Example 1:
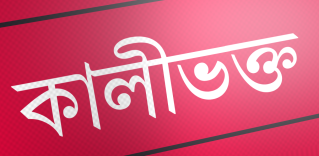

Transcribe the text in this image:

কালীভক্ত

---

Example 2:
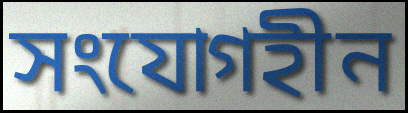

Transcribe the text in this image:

সংযোগহীন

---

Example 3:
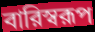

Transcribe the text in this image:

বারিস্বরূপ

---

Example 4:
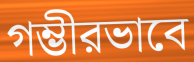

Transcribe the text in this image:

গম্ভীরভাবে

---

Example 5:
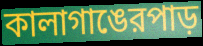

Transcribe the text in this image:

কালাগাঙেরপাড়